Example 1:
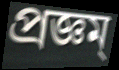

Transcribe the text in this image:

প্রজ্ঞম্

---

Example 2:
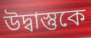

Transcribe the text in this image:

উদ্বাস্তুকে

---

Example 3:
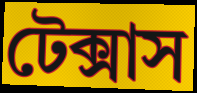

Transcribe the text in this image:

টেক্সাস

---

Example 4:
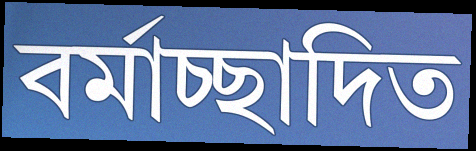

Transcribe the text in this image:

বর্মাচ্ছাদিত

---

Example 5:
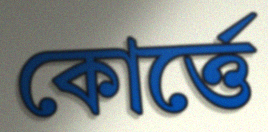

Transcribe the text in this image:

কোর্ত্তে